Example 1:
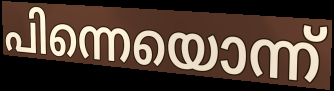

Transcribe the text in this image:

പിന്നെയൊന്ന്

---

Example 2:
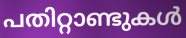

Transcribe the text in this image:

പതിറ്റാണ്ടുകൾ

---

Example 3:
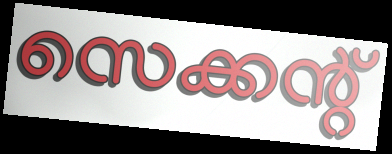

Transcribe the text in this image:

സെക്കന്റ്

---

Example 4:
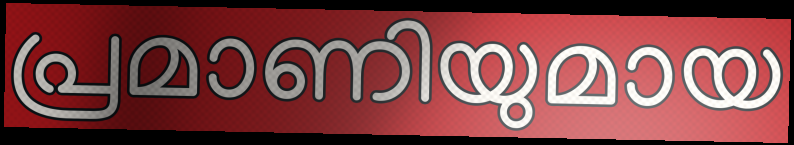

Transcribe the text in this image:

പ്രമാണിയുമായ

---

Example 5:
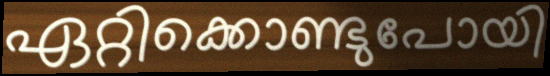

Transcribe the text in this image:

ഏറ്റിക്കൊണ്ടുപോയി